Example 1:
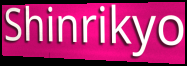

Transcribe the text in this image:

Shinrikyo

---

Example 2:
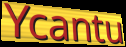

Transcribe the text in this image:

Ycantu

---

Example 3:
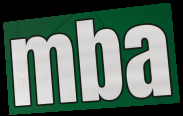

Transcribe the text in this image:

mba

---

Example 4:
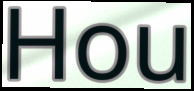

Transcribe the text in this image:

Hou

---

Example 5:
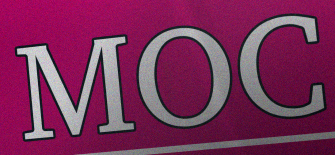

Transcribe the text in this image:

MOC